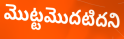
మొట్టమొదటిదని